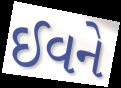
ઈવને